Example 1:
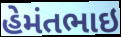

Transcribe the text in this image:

હેમંતભાઇ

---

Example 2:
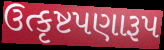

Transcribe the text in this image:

ઉત્કૃષ્ટપણારૂપ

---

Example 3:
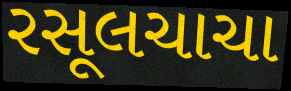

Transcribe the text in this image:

રસૂલચાચા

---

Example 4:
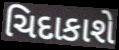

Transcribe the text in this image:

ચિદાકાશે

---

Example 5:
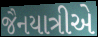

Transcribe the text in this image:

જૈનયાત્રીએ